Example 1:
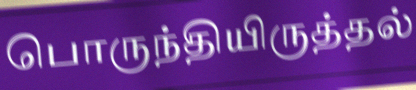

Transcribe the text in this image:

பொருந்தியிருத்தல்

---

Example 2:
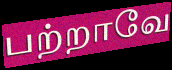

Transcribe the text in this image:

பற்றாவே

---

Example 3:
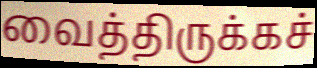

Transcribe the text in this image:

வைத்திருக்கச்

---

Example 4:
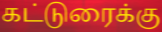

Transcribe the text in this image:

கட்டுரைக்கு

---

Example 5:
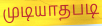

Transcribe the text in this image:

முடியாதபடி